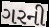
ગરની